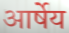
आर्षेय